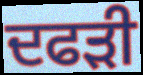
ਦਫੜੀ